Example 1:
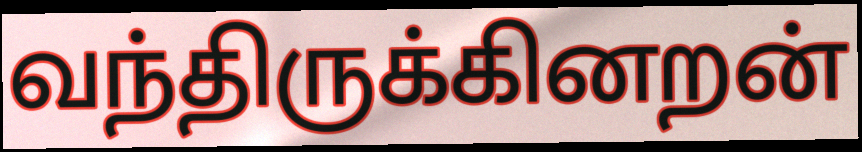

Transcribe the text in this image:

வந்திருக்கினறன்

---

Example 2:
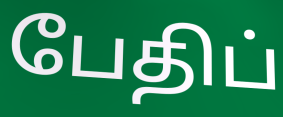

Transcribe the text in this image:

பேதிப்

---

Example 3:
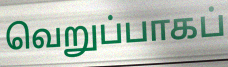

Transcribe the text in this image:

வெறுப்பாகப்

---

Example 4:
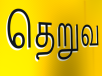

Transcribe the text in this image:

தெறுவ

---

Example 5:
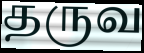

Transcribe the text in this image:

தருவ